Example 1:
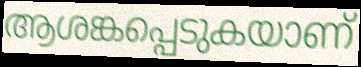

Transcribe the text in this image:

ആശങ്കപ്പെടുകയാണ്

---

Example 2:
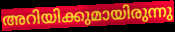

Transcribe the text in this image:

അറിയിക്കുമായിരുന്നു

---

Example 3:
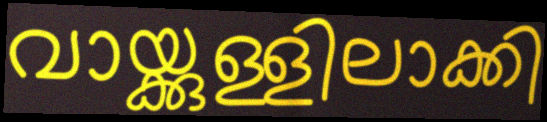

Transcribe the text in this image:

വായ്ക്കുള്ളിലാക്കി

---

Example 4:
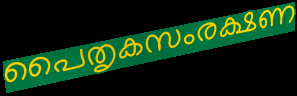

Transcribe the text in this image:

പൈതൃകസംരക്ഷണ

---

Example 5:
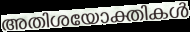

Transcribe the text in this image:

അതിശയോക്തികൾ